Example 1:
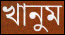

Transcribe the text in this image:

খানুম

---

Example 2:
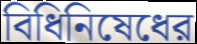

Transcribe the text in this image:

বিধিনিষেধের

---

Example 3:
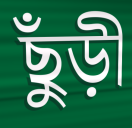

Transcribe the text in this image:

ছুঁড়ী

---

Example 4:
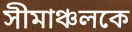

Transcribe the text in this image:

সীমাঞ্চলকে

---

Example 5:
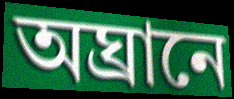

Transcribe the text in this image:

অঘ্রানে